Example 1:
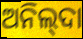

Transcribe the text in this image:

ଅନିଲ୍‌ଦା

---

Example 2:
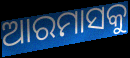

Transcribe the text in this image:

ଆରମାସକୁ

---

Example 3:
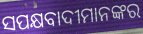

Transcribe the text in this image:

ସପକ୍ଷବାଦୀମାନଙ୍କର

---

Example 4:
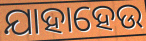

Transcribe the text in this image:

ଯାହାହେଉ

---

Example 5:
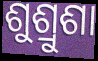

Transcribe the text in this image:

ଶୁଶ୍ରୁଶା